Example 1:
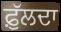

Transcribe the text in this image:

ਫ਼ੁੱਲਦਾ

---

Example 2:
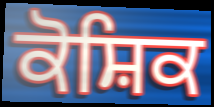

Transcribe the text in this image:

ਕੋਸ਼ਿਕ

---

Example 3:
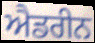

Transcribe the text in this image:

ਐਡਰੀਨ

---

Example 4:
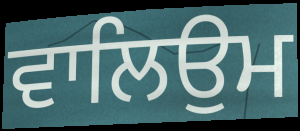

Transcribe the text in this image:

ਵਾਲਿਉਮ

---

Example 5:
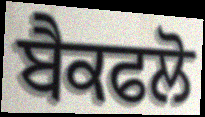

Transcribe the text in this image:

ਬੈਕਫਲੋ